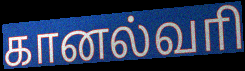
கானல்வரி